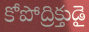
కోపోద్రిక్తుడై